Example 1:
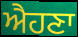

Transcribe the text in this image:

ਐਹਣਾ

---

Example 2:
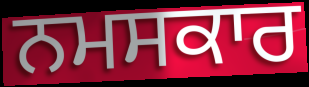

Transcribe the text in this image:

ਨਮਸਕਾਰ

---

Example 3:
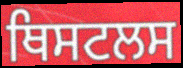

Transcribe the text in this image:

ਥਿਸਟਲਸ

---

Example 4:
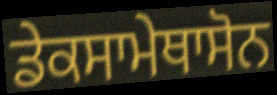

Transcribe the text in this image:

ਡੇਕਸਾਮੇਥਾਸੋਨ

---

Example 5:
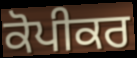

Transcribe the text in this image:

ਕੋਪੀਕਰ